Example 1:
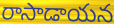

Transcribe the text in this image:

రాసాడాయన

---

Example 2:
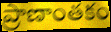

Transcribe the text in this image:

ప్రాణాంతకం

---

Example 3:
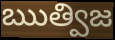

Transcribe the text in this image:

ఋత్విజ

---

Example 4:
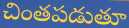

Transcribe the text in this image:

చింతపడుతూ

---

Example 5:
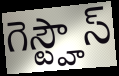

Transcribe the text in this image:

గెస్ట్హౌస్